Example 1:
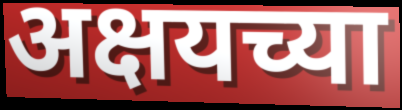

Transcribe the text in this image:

अक्षयच्या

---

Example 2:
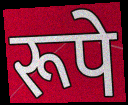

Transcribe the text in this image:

रूपे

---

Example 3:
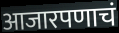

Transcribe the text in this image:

आजारपणाचं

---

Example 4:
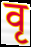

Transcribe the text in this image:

वृ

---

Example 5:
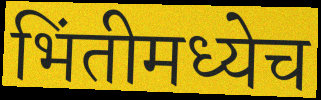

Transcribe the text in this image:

भिंतीमध्येच